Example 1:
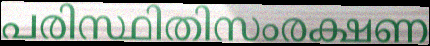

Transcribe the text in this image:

പരിസ്ഥിതിസംരക്ഷണ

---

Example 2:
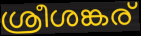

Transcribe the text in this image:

ശ്രീശങ്കര്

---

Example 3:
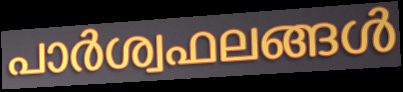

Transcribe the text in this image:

പാർശ്വഫലങ്ങൾ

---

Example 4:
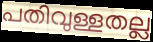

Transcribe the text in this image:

പതിവുള്ളതല്ല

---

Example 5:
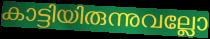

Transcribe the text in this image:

കാട്ടിയിരുന്നുവല്ലോ